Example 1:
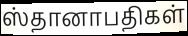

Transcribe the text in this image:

ஸ்தானாபதிகள்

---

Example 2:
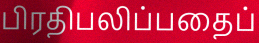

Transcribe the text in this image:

பிரதிபலிப்பதைப்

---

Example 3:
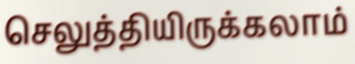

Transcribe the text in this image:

செலுத்தியிருக்கலாம்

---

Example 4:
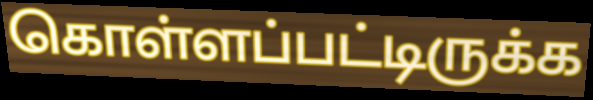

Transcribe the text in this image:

கொள்ளப்பட்டிருக்க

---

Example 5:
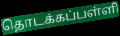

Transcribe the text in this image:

தொடக்கப்பள்ளி